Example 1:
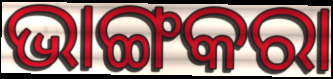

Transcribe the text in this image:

ଭାଙ୍ଗକରା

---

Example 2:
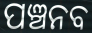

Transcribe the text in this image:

ପଞ୍ଚନବ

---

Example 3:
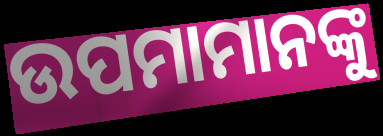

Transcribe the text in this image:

ଉପମାମାନଙ୍କୁ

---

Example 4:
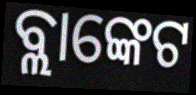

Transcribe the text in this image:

ବ୍ଲାଙ୍କେଟ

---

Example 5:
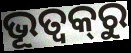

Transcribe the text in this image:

ଭୂତ୍ଵକ୍‌ରୁ